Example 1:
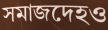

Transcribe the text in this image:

সমাজদেহও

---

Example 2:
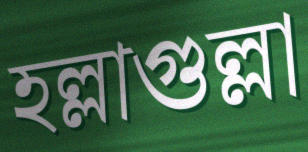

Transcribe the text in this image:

হল্লাগুল্লা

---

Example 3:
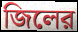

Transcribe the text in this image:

জিলের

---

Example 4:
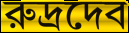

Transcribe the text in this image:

রুদ্রদেব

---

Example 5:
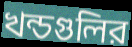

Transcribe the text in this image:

খন্ডগুলির